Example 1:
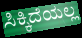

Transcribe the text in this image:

ಸಿಕ್ಕಿದೆಯಲ್ಲ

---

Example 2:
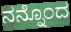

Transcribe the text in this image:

ನನ್ನೊಂದ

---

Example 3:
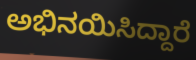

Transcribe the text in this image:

ಅಭಿನಯಿಸಿದ್ದಾರೆ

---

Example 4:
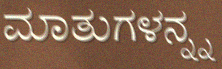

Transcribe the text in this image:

ಮಾತುಗಳನ್ನ್ನ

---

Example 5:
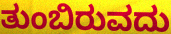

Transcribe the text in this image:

ತುಂಬಿರುವದು